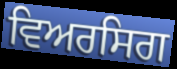
ਵਿਅਰਸਿਗ